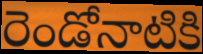
రెండోనాటికి